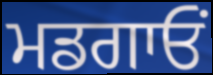
ਮਡਗਾਓਂ